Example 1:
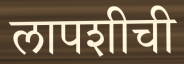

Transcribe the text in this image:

लापशीची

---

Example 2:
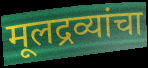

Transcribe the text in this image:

मूलद्रव्यांचा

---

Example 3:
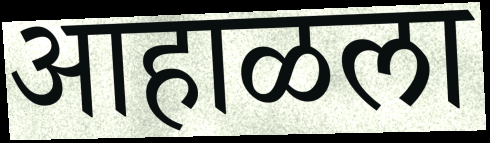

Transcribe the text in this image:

आहाळला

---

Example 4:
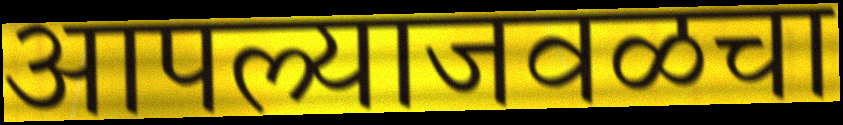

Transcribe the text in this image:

आपल्याजवळचा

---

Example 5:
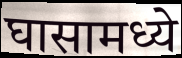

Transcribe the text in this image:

घासामध्ये